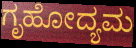
ಗೃಹೋದ್ಯಮ